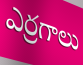
ఎర్రగాలు